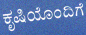
ಕೃಷಿಯೊಂದಿಗೆ